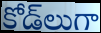
కోడ్‌లుగా